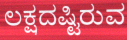
ಲಕ್ಷದಷ್ಟಿರುವ